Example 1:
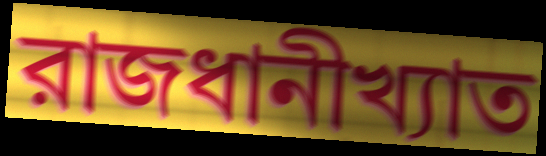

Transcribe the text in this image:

রাজধানীখ্যাত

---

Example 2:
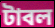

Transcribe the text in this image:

টাবল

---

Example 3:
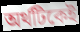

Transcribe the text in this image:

অর্থটিকেই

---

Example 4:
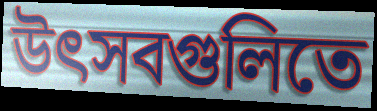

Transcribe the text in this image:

উৎসবগুলিতে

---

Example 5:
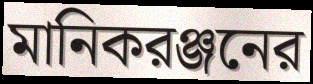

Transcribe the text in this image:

মানিকরঞ্জনের